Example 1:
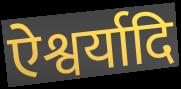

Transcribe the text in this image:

ऐश्वर्यादि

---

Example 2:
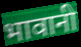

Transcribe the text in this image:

भावानी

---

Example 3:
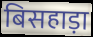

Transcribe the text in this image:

बिसहाड़ा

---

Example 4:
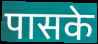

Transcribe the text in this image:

पासके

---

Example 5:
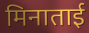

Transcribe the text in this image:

मिनाताई